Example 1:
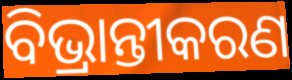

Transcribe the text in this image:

ବିଭ୍ରାନ୍ତୀକରଣ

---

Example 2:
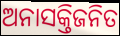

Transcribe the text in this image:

ଅନାସକ୍ତିଜନିତ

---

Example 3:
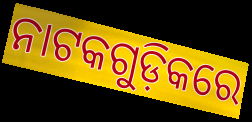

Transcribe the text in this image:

ନାଟକଗୁଡ଼ିକରେ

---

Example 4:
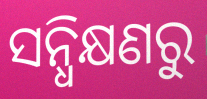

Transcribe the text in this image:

ସନ୍ଧିକ୍ଷଣରୁ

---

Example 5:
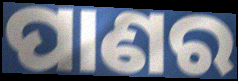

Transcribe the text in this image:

ପାଣର